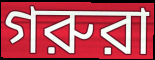
গরুরা